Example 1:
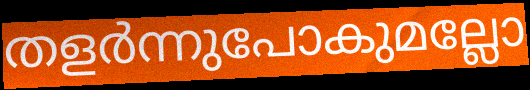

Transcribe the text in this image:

തളർന്നുപോകുമല്ലോ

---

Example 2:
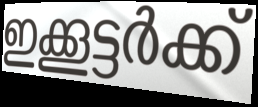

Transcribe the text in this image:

ഇക്കൂട്ടർക്ക്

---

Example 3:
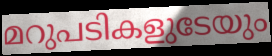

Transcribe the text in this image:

മറുപടികളുടേയും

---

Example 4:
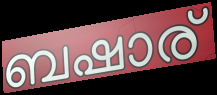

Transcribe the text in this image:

ബഷാര്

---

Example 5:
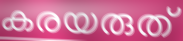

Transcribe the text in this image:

കരയരുത്